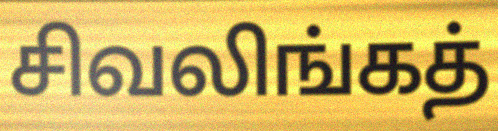
சிவலிங்கத்